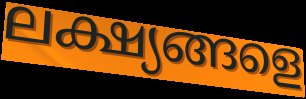
ലക്ഷ്യങ്ങളെ